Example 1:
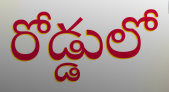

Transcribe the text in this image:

రోడ్డులో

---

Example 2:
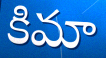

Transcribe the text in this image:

కిమా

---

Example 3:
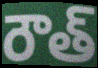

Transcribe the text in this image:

రౌత్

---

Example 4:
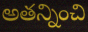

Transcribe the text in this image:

అతన్నించి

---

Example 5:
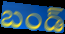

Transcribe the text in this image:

బండ్